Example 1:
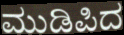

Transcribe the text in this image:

ಮುಡಿಪಿದ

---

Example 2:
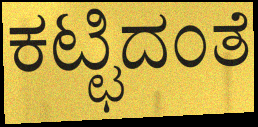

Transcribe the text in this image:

ಕಟ್ಟಿದಂತೆ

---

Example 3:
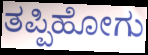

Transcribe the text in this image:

ತಪ್ಪಿಹೋಗು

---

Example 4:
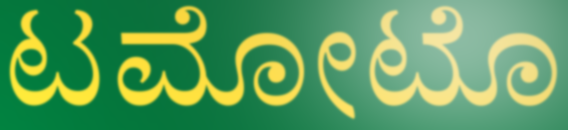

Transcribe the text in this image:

ಟಮೋಟೊ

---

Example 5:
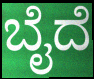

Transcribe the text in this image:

ಬೈದೆ